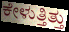
ಕೇಳುತ್ತಿತ್ತು